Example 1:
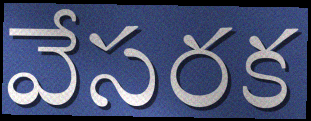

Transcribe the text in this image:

వేసరక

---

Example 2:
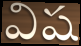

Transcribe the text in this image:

విష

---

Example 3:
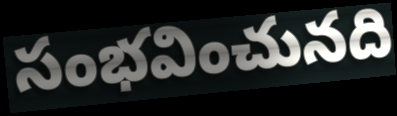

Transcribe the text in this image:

సంభవించునది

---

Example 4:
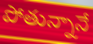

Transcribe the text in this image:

పోతున్నానే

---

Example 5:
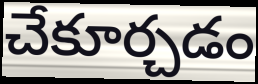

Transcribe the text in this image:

చేకూర్చడం